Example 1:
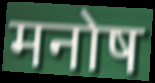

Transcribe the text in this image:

मनोष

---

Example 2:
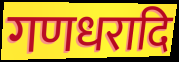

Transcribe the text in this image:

गणधरादि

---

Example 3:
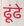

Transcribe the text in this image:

ढूंढे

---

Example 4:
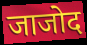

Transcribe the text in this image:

जाजोद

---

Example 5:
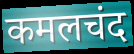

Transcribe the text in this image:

कमलचंद